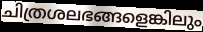
ചിത്രശലഭങ്ങളെങ്കിലും